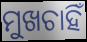
ମୁଖଚାହିଁ